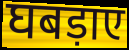
घबड़ाए